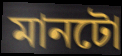
মানটো